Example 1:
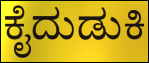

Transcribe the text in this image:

ಕೈದುಡುಕಿ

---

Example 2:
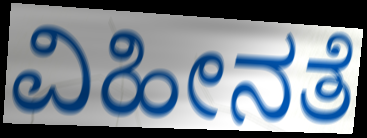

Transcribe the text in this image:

ವಿಹೀನತೆ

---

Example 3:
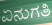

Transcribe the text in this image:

ಏನುಗತಿ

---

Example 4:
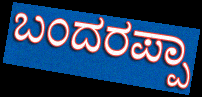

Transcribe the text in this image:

ಬಂದರಪ್ಪಾ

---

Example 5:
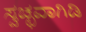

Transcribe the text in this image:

ಸ್ವಚ್ಛವಾಗಿಡಿ